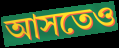
আসতেও